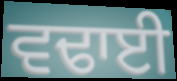
ਵਢਾਈ